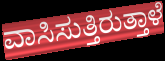
ವಾಸಿಸುತ್ತಿರುತ್ತಾಳೆ